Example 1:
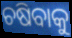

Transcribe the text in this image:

ଚଷିବାକୁ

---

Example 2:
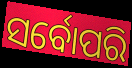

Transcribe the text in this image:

ସର୍ବୋପରି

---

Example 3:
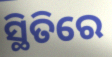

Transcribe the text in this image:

ସ୍ଥିତିରେ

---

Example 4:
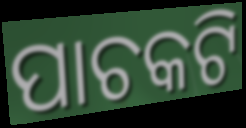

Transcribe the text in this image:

ପାଚକଟି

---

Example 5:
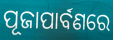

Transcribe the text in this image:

ପୂଜାପାର୍ବଣରେ